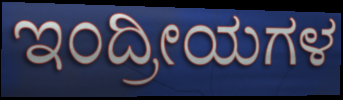
ಇಂದ್ರೀಯಗಳ